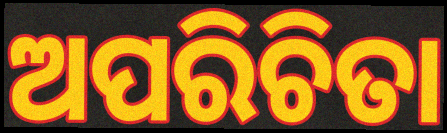
ଅପରିଚିତା